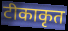
टीकाकृत